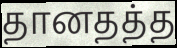
தானதத்த